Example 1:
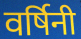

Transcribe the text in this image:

वर्षिनी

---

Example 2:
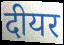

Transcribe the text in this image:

दीयर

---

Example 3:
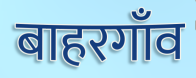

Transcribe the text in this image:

बाहरगाँव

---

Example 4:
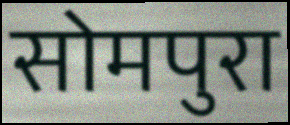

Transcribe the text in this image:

सोमपुरा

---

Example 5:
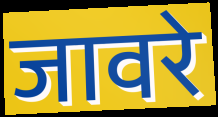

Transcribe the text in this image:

जावरे